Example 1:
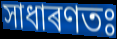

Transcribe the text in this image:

সাধাৰণতঃ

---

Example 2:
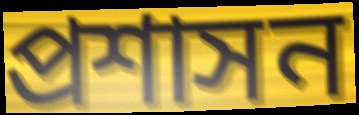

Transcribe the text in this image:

প্ৰশাসন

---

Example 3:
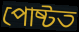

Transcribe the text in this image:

পোষ্টত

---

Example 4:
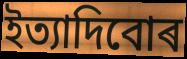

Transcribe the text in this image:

ইত্যাদিবোৰ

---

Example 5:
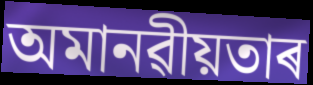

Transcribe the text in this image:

অমানৱীয়তাৰ